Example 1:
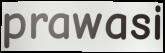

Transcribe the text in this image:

prawasi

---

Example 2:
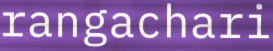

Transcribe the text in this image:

rangachari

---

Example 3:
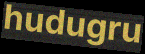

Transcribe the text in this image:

hudugru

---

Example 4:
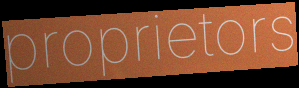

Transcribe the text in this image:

proprietors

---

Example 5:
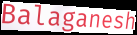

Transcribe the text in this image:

Balaganesh